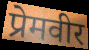
प्रेमवीर